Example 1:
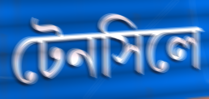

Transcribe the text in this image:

টেনসিলে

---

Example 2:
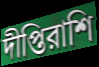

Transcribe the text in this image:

দীপ্তিরাশি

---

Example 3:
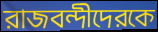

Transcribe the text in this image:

রাজবন্দীদেরকে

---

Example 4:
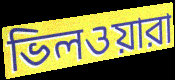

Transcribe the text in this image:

ভিলওয়ারা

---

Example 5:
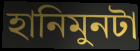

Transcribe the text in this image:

হানিমুনটা